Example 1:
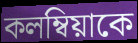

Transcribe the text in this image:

কলম্বিয়াকে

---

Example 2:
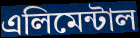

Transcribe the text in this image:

এলিমেন্টাল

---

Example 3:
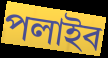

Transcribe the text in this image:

পলাইব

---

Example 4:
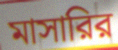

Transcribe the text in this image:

মাসারির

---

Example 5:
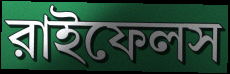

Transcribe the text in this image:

রাইফেলস